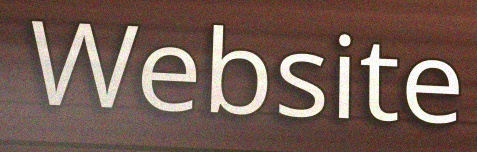
Website